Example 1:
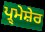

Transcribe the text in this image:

ਪ੍ਰ੍ਮੇਸ਼ੇਰ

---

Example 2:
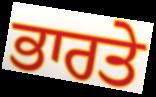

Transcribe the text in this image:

ਭਾਰਤੇ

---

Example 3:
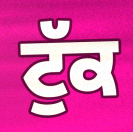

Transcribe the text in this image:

ਟੁੱਕ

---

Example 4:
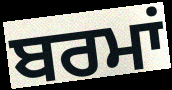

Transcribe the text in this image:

ਬਰਮਾਂ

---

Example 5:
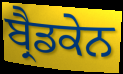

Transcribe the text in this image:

ਬ੍ਰੈਡਕੇਨ